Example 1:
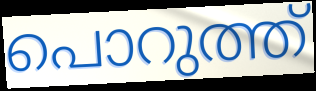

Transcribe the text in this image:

പൊറുത്ത്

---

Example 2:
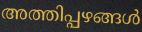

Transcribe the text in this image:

അത്തിപ്പഴങ്ങൾ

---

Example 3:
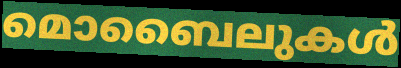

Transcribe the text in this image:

മൊബൈലുകൾ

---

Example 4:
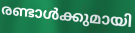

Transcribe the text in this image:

രണ്ടാൾക്കുമായി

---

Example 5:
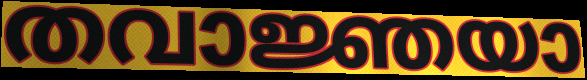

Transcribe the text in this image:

തവാജ്ഞയാ